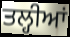
ਤਲ੍ਹੀਆਂ